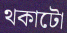
থকাটো